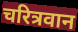
चरित्रवान